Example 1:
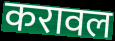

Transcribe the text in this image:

करावल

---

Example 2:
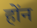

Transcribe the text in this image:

होंन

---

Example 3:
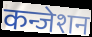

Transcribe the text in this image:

कन्जेशन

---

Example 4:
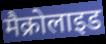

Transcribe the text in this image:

मैक्रोलाइड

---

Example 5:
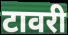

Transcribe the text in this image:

टावरी